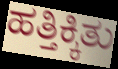
ಹತ್ತಿಕ್ಕಿತು